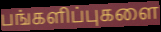
பங்களிப்புகளை